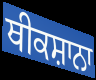
ਥੀਕਸ਼ਾਨਾ